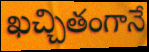
ఖచ్చితంగానే